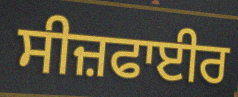
ਸੀਜ਼ਫਾਈਰ